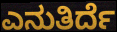
ಎನುತಿರ್ದೆ